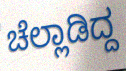
ಚೆಲ್ಲಾಡಿದ್ದ